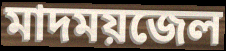
মাদময়জেল